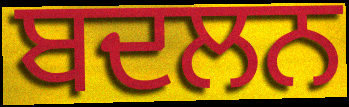
ਬਦਲਨ